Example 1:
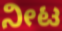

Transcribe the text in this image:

ನೀಟ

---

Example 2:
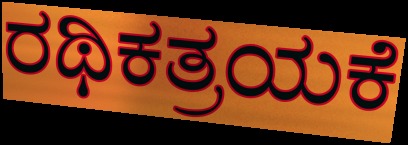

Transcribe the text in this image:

ರಥಿಕತ್ರಯಕೆ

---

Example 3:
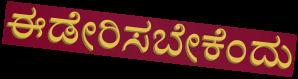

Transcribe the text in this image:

ಈಡೇರಿಸಬೇಕೆಂದು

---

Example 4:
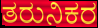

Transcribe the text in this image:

ತರುನಿಕರ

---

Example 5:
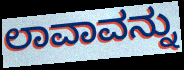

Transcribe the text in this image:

ಲಾವಾವನ್ನು